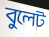
বুলেট